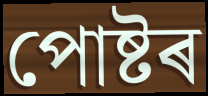
পোষ্টৰ